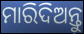
ମାରିଦିଅନ୍ତୁ